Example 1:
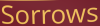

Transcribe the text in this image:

Sorrows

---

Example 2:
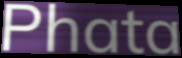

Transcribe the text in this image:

Phata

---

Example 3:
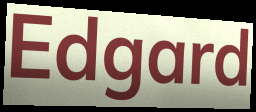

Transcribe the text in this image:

Edgard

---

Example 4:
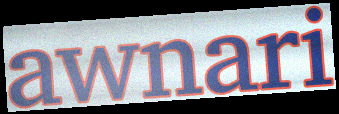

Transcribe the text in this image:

awnari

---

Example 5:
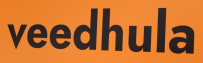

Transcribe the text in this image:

veedhula